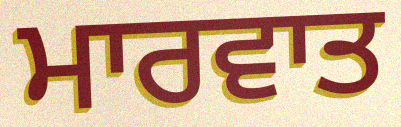
ਮਾਰਵਾਤ